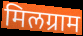
मिलग्राम